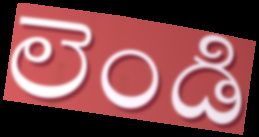
లెండి